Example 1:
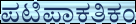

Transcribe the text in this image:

ಪಟಿಪಾಕತಿಕಂ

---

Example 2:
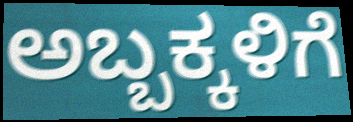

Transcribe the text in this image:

ಅಬ್ಬಕ್ಕಳಿಗೆ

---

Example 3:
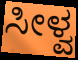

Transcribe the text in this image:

ಸೀಳ್ವ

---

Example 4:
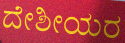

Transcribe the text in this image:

ದೇಶೀಯರ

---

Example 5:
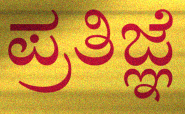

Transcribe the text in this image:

ಪ್ರತಿಜ್ಞೆ